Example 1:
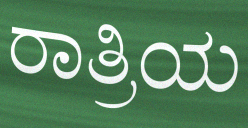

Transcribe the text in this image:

ರಾತ್ರಿಯ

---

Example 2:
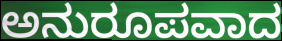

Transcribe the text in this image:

ಅನುರೂಪವಾದ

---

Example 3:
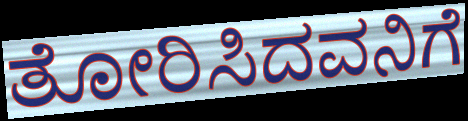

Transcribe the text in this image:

ತೋರಿಸಿದವನಿಗೆ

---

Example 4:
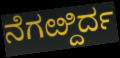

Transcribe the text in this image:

ನೆಗೞ್ದಿರ್ದ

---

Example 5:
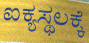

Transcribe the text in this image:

ಐಕ್ಯಸ್ಥಲಕ್ಕೆ